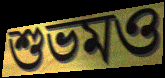
শুভমও